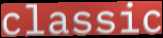
classic